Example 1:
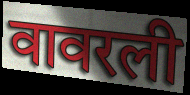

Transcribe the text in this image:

वावरली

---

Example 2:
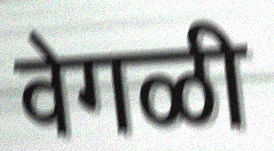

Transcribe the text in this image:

वेगळी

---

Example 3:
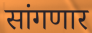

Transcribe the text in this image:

सांगणार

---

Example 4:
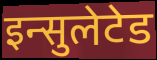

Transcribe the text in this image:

इन्सुलेटेड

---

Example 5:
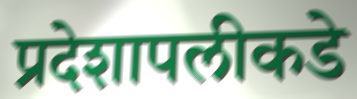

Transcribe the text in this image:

प्रदेशापलीकडे